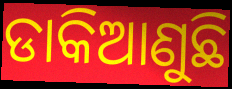
ଡାକିଆଣୁଛି